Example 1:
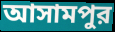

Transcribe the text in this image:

আসামপুর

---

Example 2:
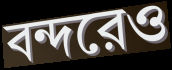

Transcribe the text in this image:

বন্দরেও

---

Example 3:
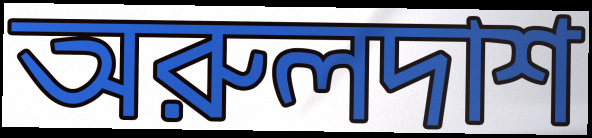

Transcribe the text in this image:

অরুলদাশ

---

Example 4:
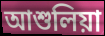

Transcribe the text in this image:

আশুলিয়া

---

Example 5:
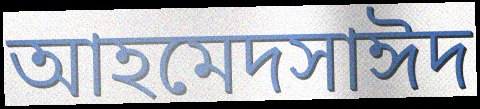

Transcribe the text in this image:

আহমেদসাঈদ